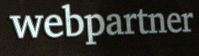
webpartner